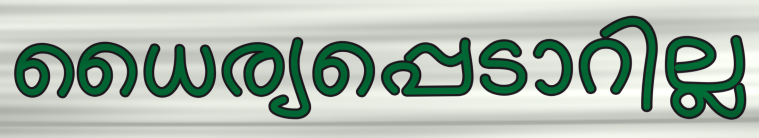
ധൈര്യപ്പെടാറില്ല